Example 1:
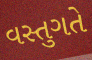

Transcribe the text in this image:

વસ્તુગતે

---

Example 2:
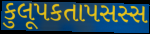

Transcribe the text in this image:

કુલૂપકતાપસસ્સ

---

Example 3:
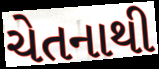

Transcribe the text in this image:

ચેતનાથી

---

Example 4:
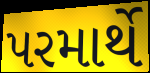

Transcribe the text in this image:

પરમાર્થે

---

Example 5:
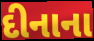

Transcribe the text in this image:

દીનાના